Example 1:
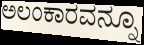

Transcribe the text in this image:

ಅಲಂಕಾರವನ್ನೂ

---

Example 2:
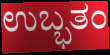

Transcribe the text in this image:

ಉಬ್ಭತಂ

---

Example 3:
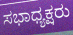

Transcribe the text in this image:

ಸಭಾಧ್ಯಕ್ಷರು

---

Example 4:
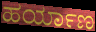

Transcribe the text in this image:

ಹರ್ಯಾಣ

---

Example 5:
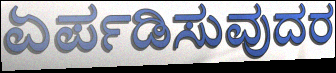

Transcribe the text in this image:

ಏರ್ಪಡಿಸುವುದರ